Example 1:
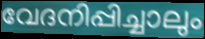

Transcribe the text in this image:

വേദനിപ്പിച്ചാലും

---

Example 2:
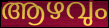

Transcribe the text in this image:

ആഴവും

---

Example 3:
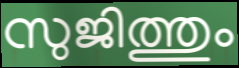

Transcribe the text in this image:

സുജിത്തും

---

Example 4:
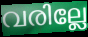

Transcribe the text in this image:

വരില്ലേ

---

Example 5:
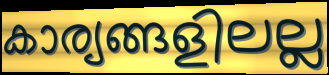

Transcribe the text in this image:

കാര്യങ്ങളിലല്ല